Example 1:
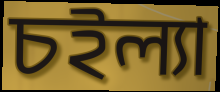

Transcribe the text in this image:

চইল্যা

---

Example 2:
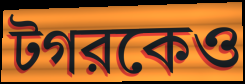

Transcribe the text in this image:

টগরকেও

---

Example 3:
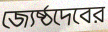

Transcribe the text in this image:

জ্যেষ্ঠদেবের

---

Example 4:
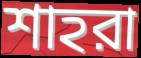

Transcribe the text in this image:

শাহরা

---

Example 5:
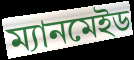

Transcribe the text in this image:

ম্যানমেইড